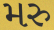
મરુ